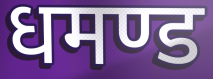
धमण्ड